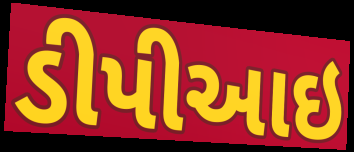
ડીપીઆઇ